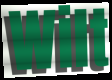
Wilt